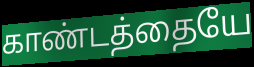
காண்டத்தையே